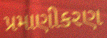
પ્રમાણીકરણ